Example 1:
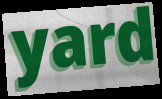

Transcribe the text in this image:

yard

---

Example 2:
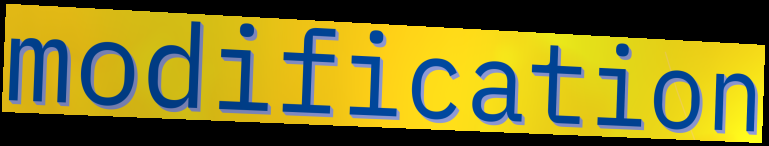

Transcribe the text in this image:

modification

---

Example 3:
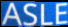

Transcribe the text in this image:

ASLE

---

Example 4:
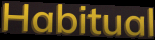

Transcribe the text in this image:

Habitual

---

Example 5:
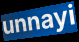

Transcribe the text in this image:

unnayi